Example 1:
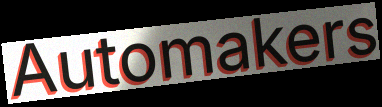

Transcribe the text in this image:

Automakers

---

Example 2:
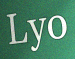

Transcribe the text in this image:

Lyo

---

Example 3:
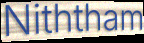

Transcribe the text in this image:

Niththam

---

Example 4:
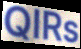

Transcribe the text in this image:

QIRs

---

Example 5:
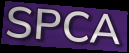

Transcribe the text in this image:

SPCA